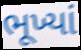
ભૂખ્યાં